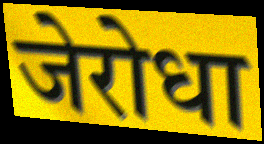
जेरोधा